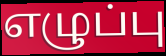
எழுப்பு